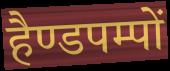
हैण्डपम्पों